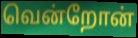
வென்றோன்